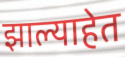
झाल्याहेत